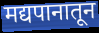
मद्यपानातून